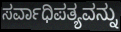
ಸರ್ವಾಧಿಪತ್ಯವನ್ನು